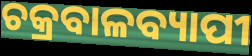
ଚକ୍ରବାଳବ୍ୟାପୀ